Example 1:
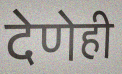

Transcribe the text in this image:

देणेही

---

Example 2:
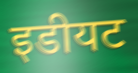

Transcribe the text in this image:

इडीयट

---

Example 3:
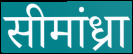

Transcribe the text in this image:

सीमांध्रा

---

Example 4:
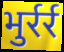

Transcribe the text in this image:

भुर्रर्र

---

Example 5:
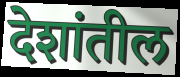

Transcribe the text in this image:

देशांतील